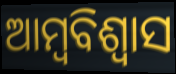
ଆମ୍ବବିଶ୍ଵାସ